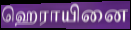
ஹெராயினை